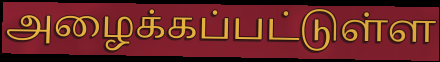
அழைக்கப்பட்டுள்ள